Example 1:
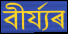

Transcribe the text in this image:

বীৰ্য্যৰ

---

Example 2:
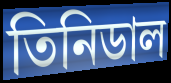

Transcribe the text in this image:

তিনিডাল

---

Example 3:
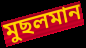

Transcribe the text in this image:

মুছলমান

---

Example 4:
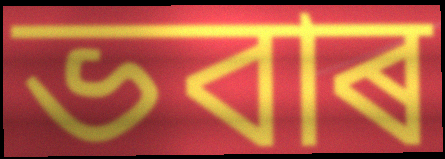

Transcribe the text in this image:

ভবাৰ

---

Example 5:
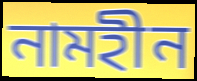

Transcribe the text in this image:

নামহীন